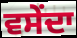
ਵਸੇਂਦਾ